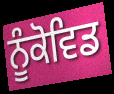
ਨੂੰਕੋਵਿਡ